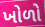
ખોળો